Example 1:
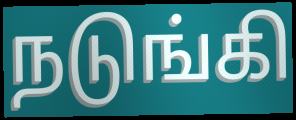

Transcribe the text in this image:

நடுங்கி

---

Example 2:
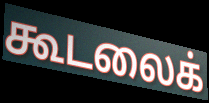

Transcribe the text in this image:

கூடலைக்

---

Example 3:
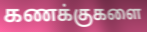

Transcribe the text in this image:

கணக்குகளை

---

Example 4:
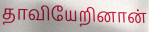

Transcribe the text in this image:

தாவியேறினான்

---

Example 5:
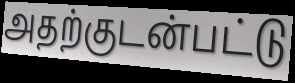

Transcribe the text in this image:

அதற்குடன்பட்டு